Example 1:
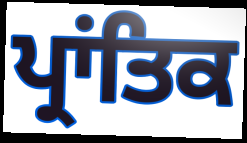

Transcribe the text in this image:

ਪ੍ਰਾਂਤਿਕ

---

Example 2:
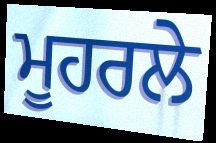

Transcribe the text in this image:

ਮੂਹਰਲੇ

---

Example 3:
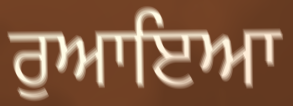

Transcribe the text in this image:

ਰੁਆਇਆ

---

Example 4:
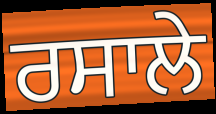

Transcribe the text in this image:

ਰਸਾਲੇ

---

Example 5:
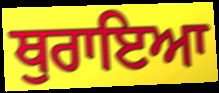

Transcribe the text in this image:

ਥੁਰਾਇਆ